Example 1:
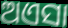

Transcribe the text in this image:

ଅଏସା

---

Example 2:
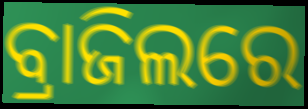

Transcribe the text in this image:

ବ୍ରାଜିଲରେ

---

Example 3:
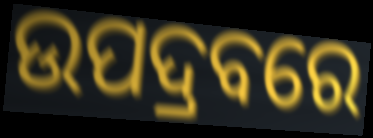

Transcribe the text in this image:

ଉପଦ୍ରବରେ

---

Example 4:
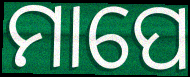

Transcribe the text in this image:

ମାପେ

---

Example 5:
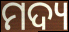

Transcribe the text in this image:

ମଦ୍ୟ